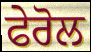
ਫੇਰੋਲ